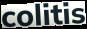
colitis